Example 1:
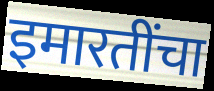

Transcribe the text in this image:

इमारतींचा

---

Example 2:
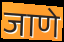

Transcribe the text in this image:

जाणे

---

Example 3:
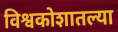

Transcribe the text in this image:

विश्वकोशातल्या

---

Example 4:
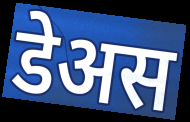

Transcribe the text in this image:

डेअस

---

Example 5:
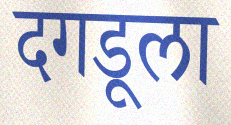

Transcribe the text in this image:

दगडूला